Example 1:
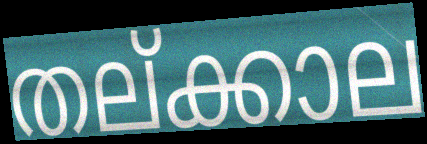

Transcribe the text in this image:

തല്ക്കാല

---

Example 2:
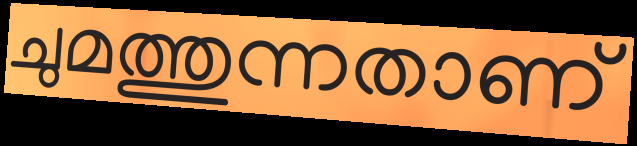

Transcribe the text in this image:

ചുമത്തുന്നതാണ്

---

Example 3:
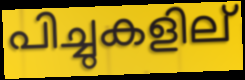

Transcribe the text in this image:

പിച്ചുകളില്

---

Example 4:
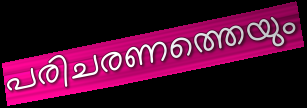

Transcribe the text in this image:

പരിചരണത്തെയും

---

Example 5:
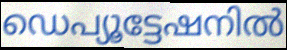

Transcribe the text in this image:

ഡെപ്യൂട്ടേഷനിൽ